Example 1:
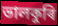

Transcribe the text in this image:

ভালকুৰি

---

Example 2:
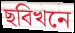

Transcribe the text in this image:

ছবিখনে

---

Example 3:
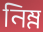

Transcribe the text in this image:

নিম্ন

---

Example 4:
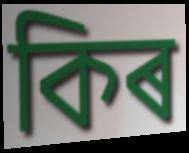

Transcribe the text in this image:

কিৰ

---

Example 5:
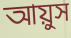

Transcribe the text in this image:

আয়ুস